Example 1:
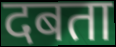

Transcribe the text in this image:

दबता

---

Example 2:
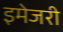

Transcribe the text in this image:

इमेजरी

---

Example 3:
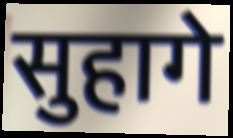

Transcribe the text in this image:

सुहागे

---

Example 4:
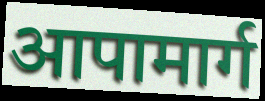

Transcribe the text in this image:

आपामार्ग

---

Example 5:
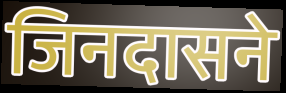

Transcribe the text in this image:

जिनदासने